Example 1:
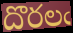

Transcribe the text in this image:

దొరలఁ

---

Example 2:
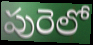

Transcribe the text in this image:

పురెలో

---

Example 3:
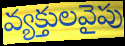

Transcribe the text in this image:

వ్యక్తులవైపు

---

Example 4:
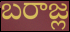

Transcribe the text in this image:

బరాజ్ల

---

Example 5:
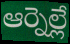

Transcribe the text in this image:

ఆర్నెల్లే